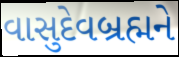
વાસુદેવબ્રહ્મને